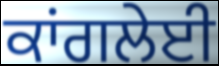
ਕਾਂਗਲੇਈ